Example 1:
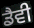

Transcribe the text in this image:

ਡੈਵੀ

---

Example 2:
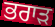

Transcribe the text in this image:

ਭਰਾੜ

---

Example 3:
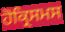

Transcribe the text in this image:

ਹੋਕ੍ਰਿਸਮਸ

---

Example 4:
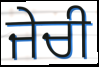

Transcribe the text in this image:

ਜੇਚੀ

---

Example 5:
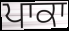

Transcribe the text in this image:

ਪਾਕਾ